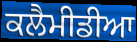
ਕਲੈਮੀਡੀਆ